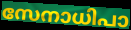
സേനാധിപാ